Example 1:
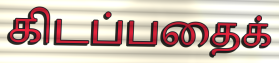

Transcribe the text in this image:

கிடப்பதைக்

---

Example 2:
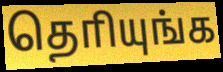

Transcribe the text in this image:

தெரியுங்க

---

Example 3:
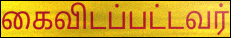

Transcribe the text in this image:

கைவிடப்பட்டவர்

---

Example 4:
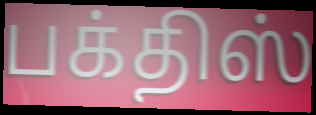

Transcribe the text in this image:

பக்திஸ்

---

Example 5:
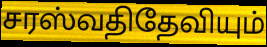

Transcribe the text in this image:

சரஸ்வதிதேவியும்